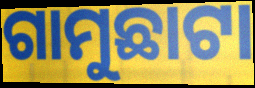
ଗାମୁଛାଟା